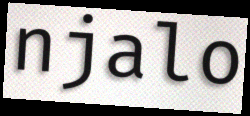
njalo